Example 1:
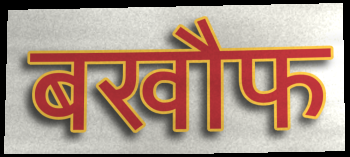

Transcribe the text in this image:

बखौफ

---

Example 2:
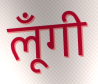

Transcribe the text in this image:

लूँगी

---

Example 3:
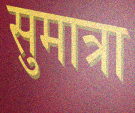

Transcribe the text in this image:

सुमात्रा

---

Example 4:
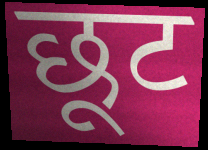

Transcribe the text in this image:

छूट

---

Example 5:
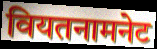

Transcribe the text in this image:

वियतनामनेट